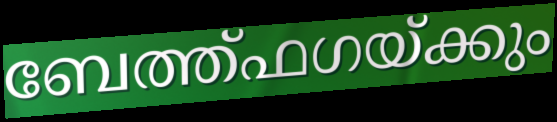
ബേത്ത്ഫഗയ്ക്കും